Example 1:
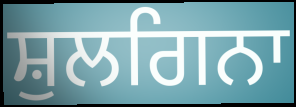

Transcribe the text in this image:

ਸ਼ੁਲਗਿਨਾ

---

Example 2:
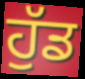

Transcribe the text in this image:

ਹੁੱਡ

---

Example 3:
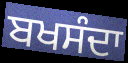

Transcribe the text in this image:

ਬਖਸੰਦਾ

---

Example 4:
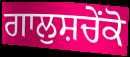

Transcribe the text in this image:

ਗਾਲੁਸ਼ਚੇਂਕੋ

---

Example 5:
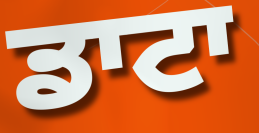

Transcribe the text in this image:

ਡਾਟਾ